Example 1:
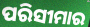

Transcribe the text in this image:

ପରିସୀମାର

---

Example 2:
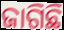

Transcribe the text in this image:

ଜାଗିଛି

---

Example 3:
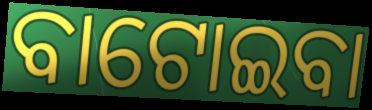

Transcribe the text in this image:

ବାଟୋଇବା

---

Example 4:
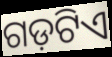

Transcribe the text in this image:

ଗଡ଼ଟିଏ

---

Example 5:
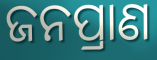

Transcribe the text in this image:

ଜନପ୍ରାଣ